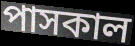
পাসকাল